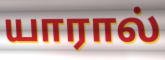
யாரால்